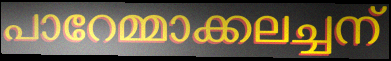
പാറേമ്മാക്കലച്ചന്